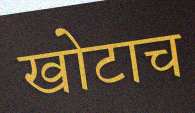
खोटाच